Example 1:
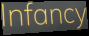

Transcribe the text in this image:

Infancy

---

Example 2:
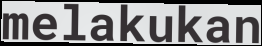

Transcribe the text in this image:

melakukan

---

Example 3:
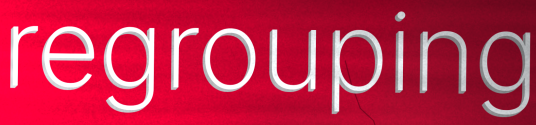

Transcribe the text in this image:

regrouping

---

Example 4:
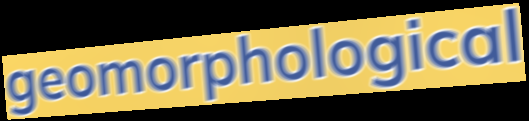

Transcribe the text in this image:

geomorphological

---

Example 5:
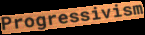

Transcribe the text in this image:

Progressivism